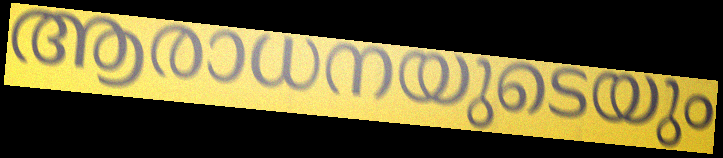
ആരാധനയുടെയും